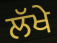
ਲੱਖੇ